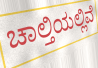
ಚಾಲ್ತಿಯಲ್ಲಿವೆ